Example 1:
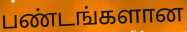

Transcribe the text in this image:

பண்டங்களான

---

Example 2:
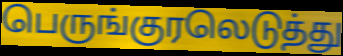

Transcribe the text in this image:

பெருங்குரலெடுத்து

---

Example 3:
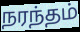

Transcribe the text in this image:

நரந்தம்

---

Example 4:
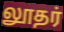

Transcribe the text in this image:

லூதர்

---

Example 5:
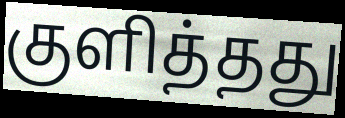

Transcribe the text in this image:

குளித்தது